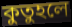
কুতুহলে